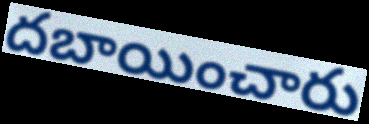
దబాయించారు